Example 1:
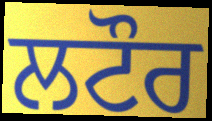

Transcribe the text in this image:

ਲਟੌਰ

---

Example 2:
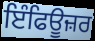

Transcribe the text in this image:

ਇੰਫਿਊਜ਼ਰ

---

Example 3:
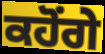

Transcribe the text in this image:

ਕਹੋਂਗੇ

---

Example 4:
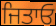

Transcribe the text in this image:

ਜਿਤਾਓ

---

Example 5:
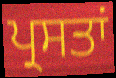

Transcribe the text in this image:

ਪ੍ਰਸਤਾਂ